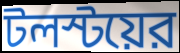
টলস্টয়ের